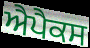
ਐਪੈਕਸ